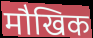
मौखिक